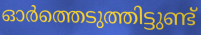
ഓർത്തെടുത്തിട്ടുണ്ട്